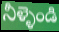
నీళ్ళెండి